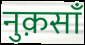
नुक़साँ